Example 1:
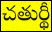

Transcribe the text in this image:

చతుర్థీ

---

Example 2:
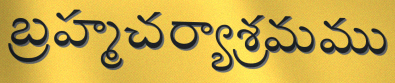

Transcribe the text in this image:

బ్రహ్మచర్యాశ్రమము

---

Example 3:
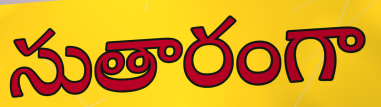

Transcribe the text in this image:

సుతారంగా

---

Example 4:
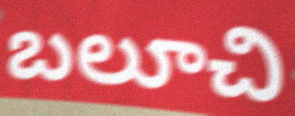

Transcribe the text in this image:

బలూచి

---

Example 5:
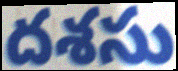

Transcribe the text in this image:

దశసు